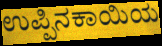
ಉಪ್ಪಿನಕಾಯಿಯ